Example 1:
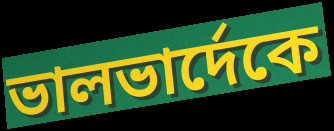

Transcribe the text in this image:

ভালভার্দেকে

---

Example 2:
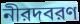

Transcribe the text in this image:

নীরদবরণ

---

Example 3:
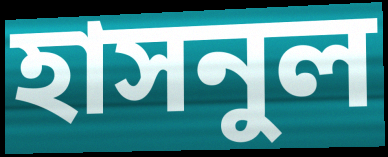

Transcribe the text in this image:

হাসনুল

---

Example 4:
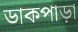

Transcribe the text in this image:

ডাকপাড়া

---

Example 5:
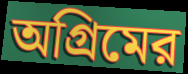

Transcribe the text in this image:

অগ্রিমের